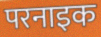
परनाइक